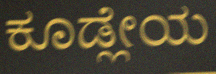
ಕೂಡ್ಲೇಯ